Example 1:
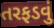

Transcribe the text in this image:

તરફડવું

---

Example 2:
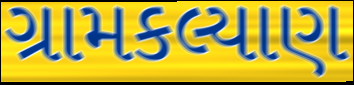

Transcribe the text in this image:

ગ્રામકલ્યાણ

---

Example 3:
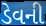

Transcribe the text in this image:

ડેવની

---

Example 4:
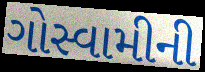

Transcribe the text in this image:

ગોસ્વામીની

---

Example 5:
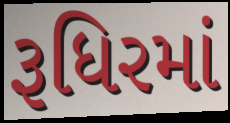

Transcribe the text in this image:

રૂધિરમાં